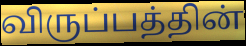
விருப்பத்தின்